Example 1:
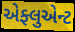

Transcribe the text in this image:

એફ્લુએન્ટ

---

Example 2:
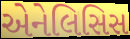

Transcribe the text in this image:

એનેલિસિસ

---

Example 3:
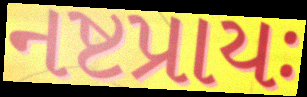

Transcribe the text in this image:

નષ્ટપ્રાયઃ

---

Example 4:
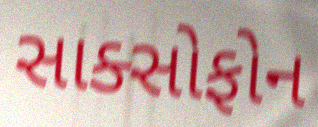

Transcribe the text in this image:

સાક્સોફોન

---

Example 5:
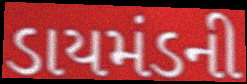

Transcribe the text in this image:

ડાયમંડની